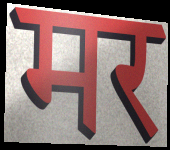
मर